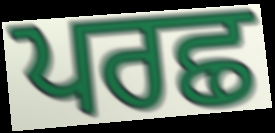
ਪਰਛ